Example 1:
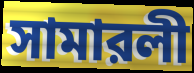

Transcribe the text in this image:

সামারলী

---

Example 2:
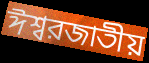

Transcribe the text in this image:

ঈশ্বরজাতীয়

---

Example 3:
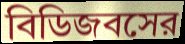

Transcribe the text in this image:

বিডিজবসের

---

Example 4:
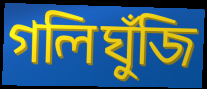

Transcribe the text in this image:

গলিঘুঁজি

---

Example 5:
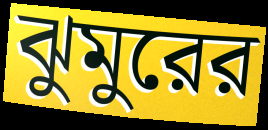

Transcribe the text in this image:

ঝুমুরের